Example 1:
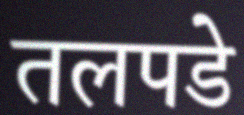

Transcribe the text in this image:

तलपडे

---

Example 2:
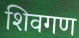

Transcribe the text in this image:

शिवगण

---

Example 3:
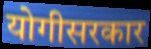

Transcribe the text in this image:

योगीसरकार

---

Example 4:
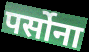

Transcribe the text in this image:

पर्सोना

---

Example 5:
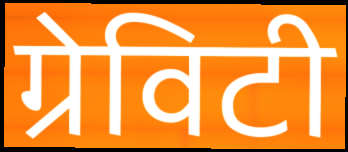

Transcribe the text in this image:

ग्रेविटी